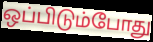
ஒப்பிடும்போது